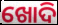
ଖୋଦି